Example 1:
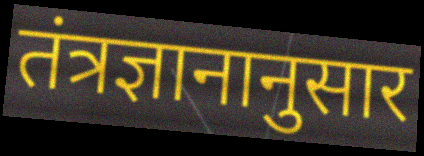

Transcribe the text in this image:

तंत्रज्ञानानुसार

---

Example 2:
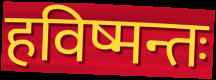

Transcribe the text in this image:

हविष्मन्तः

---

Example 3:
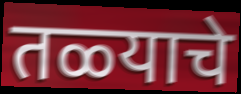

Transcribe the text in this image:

तळ्याचे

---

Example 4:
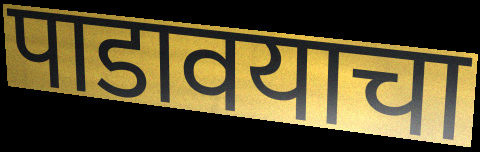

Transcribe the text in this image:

पाडावयाचा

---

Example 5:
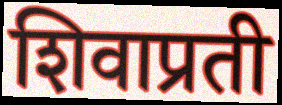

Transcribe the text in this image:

शिवाप्रती